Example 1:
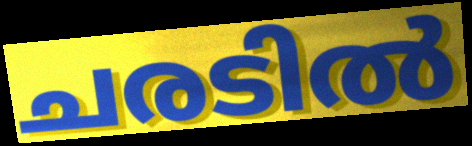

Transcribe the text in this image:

ചരടിൽ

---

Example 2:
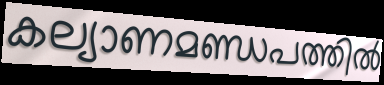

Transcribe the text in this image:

കല്യാണമണ്ഡപത്തിൽ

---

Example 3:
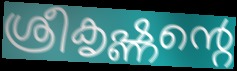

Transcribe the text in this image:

ശ്രീകൃഷ്ണന്റെ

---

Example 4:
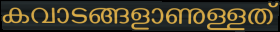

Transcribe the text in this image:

കവാടങ്ങളാണുള്ളത്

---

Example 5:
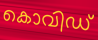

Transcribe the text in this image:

കൊവിഡ്